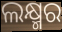
ଲକ୍ଷ୍ମର